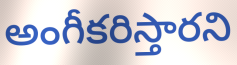
అంగీకరిస్తారని